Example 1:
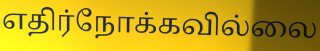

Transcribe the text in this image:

எதிர்நோக்கவில்லை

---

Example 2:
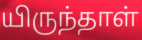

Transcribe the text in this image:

யிருந்தாள்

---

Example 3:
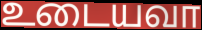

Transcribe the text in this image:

உடையவா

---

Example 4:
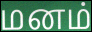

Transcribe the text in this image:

மனம்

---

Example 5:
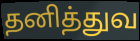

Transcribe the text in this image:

தனித்துவ